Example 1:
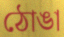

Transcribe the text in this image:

ঠোঙা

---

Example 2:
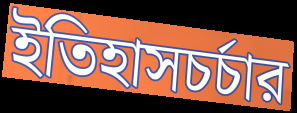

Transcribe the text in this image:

ইতিহাসচর্চার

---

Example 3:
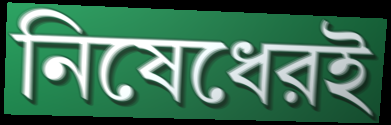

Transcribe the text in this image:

নিষেধেরই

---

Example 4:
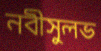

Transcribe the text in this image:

নবীসুলভ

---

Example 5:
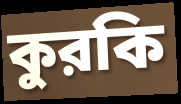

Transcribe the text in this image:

কুরকি